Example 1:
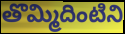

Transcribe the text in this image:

తొమ్మిదింటిని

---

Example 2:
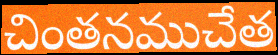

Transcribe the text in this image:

చింతనముచేత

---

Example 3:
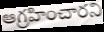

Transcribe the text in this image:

ఆగ్రహించారని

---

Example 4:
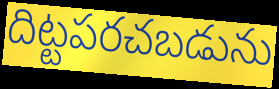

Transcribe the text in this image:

దిట్టపరచబడును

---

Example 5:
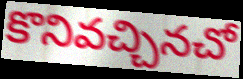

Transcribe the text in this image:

కొనివచ్చినచో